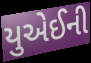
યુએઈની